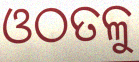
ଓଠତଳୁ